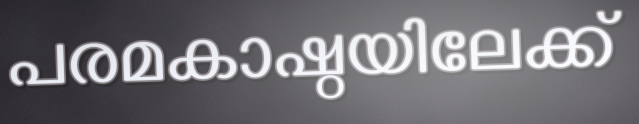
പരമകാഷ്ഠയിലേക്ക്